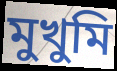
মুখুমি